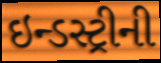
ઇન્ડસ્ટ્રીની